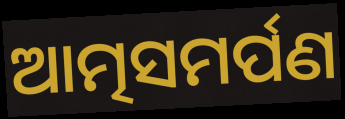
ଆତ୍ମସମର୍ପଣ